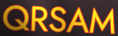
QRSAM